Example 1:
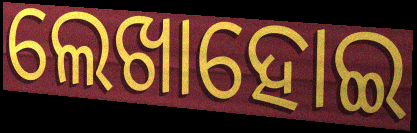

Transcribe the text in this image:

ଲେଖାହୋଇ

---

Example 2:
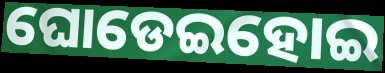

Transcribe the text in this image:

ଘୋଡେଇହୋଇ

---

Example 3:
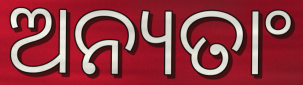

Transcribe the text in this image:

ଅନ୍ୟତାଂ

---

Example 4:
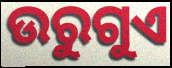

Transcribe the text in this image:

ଉରୁଗୁଏ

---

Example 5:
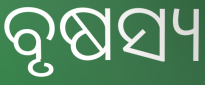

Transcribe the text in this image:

ବୃଷସ୍ୟ